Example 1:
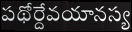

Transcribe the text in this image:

పథోర్దేవయానస్య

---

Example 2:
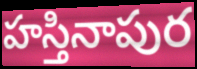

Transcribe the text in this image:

హస్తినాపుర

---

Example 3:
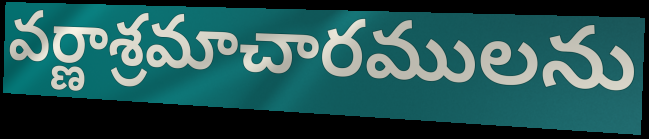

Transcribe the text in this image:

వర్ణాశ్రమాచారములను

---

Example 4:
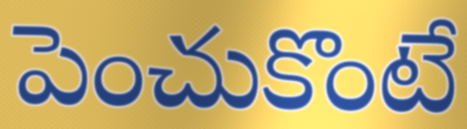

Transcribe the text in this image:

పెంచుకొంటే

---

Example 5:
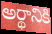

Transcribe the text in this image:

అర్థానికి